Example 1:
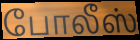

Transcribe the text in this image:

போலீஸ்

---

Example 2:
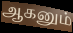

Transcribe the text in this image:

ஆகனும்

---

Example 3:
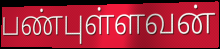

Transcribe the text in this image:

பண்புள்ளவன்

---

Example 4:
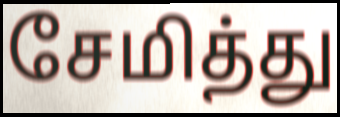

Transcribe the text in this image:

சேமித்து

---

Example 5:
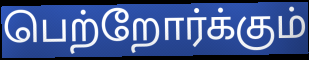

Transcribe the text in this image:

பெற்றோர்க்கும்